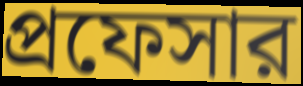
প্রফেসার